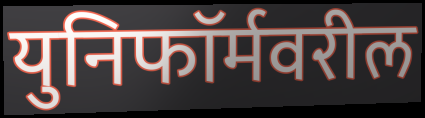
युनिफॉर्मवरील